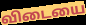
விடையை